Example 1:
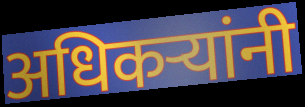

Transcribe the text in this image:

अधिकऱ्यांनी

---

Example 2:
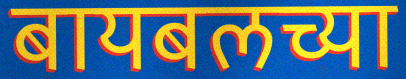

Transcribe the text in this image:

बायबलच्या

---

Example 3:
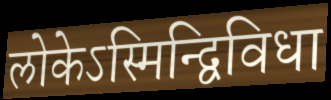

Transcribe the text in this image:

लोकेऽस्मिन्द्विविधा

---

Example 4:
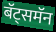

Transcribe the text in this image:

बॅट्समॅन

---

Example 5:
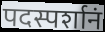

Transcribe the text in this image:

पदस्पर्शानं